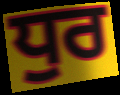
ਧੁਰ